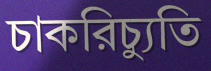
চাকরিচ্যুতি